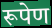
रूपेण